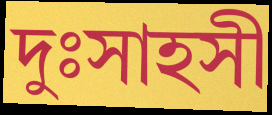
দুঃসাহসী